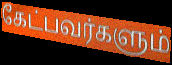
கேட்பவர்களும்